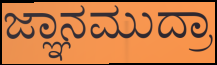
ಜ್ಞಾನಮುದ್ರಾ